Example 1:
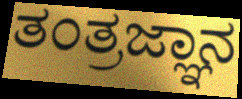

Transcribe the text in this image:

ತಂತ್ರಜ್ಞಾನ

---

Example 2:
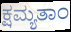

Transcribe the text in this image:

ಕ್ಷಮ್ಯತಾಂ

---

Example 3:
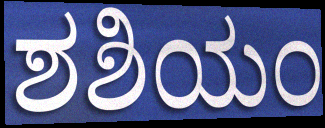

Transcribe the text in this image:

ಶಶಿಯಂ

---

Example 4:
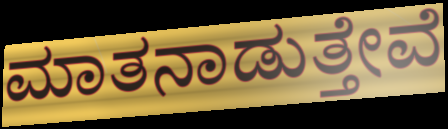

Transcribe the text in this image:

ಮಾತನಾಡುತ್ತೇವೆ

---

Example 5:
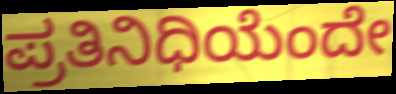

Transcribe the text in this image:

ಪ್ರತಿನಿಧಿಯೆಂದೇ